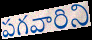
పగవారిని